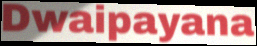
Dwaipayana